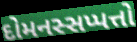
દોમનસ્સપ્પત્તો